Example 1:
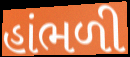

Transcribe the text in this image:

હાંભળી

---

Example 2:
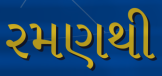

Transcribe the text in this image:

રમણથી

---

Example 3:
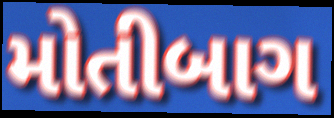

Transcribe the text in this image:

મોતીબાગ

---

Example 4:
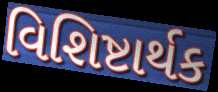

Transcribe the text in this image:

વિશિષ્ટાર્થક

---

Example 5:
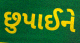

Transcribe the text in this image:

છુપાઈને